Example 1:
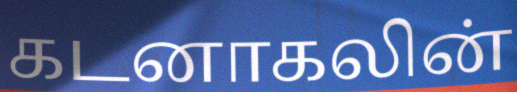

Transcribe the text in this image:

கடனாகலின்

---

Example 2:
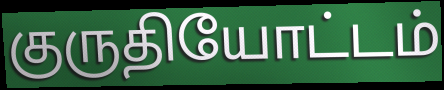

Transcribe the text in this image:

குருதியோட்டம்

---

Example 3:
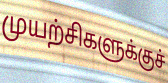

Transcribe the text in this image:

முயற்சிகளுக்குச்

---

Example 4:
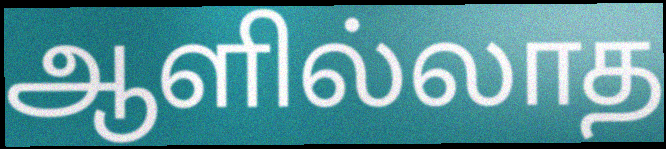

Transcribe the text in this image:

ஆளில்லாத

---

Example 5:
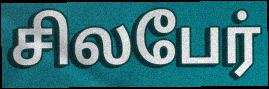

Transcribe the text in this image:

சிலபேர்